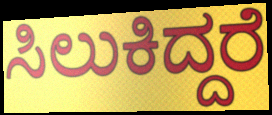
ಸಿಲುಕಿದ್ದರೆ